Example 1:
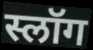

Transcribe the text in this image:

स्लॉग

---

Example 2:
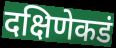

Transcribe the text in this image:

दक्षिणेकडं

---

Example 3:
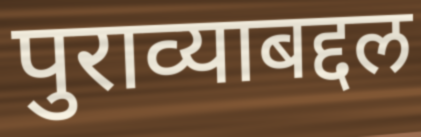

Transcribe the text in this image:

पुराव्याबद्दल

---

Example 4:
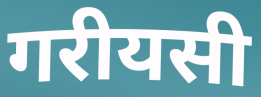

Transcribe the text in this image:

गरीयसी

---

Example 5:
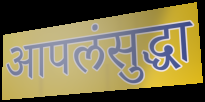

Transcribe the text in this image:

आपलंसुद्धा